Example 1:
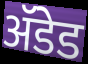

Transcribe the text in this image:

ॲडेड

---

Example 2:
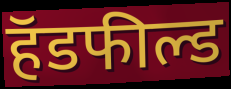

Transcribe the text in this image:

हॅडफील्ड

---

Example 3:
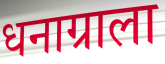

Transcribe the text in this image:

धनाग्राला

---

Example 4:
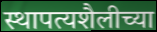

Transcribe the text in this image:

स्थापत्यशैलीच्या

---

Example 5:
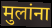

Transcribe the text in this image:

मुलांना